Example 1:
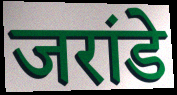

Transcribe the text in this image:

जरांडे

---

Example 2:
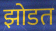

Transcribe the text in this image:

झोडत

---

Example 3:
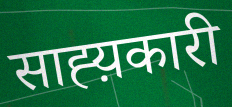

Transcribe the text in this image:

साह्य़कारी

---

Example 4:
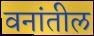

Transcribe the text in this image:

वनांतील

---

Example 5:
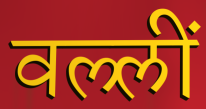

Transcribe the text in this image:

वल्लीं